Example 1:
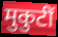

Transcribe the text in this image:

मुकुटीं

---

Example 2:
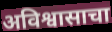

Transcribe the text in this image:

अविश्वासाचा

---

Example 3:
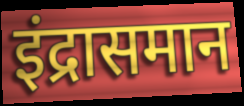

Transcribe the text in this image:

इंद्रासमान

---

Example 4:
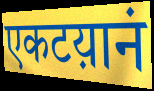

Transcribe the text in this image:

एकटय़ानं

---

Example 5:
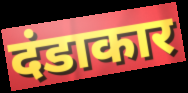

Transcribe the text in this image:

दंडाकार